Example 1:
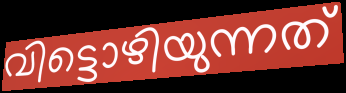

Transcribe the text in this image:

വിട്ടൊഴിയുന്നത്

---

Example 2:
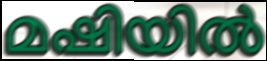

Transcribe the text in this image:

മഷിയിൽ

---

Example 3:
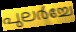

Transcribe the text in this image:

പുലർച്ചേ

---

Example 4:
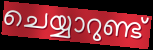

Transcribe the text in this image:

ചെയ്യാറുണ്ട്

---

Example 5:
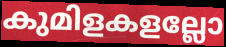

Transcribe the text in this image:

കുമിളകളല്ലോ